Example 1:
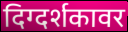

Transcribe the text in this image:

दिग्दर्शकावर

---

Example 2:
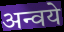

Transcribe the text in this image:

अन्‍वये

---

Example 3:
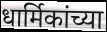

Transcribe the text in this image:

धार्मिकांच्या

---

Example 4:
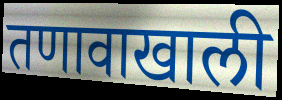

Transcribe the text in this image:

तणावाखाली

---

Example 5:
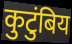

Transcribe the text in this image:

कुटुंबिय